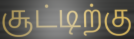
சூட்டிற்கு